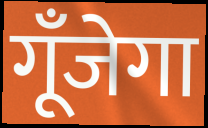
गूँजेगा